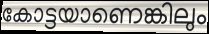
കോട്ടയാണെങ്കിലും